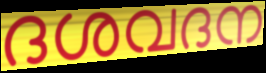
ദശവദന